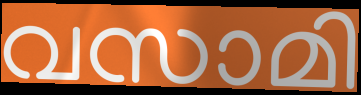
വസാമി